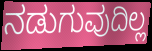
ನಡುಗುವುದಿಲ್ಲ